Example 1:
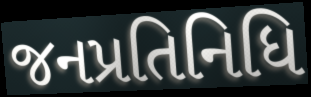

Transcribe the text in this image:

જનપ્રતિનિધિ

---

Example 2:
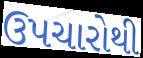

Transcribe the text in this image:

ઉપચારોથી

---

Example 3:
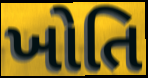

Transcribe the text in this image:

ખોતિ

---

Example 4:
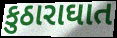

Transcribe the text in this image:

કુઠારાઘાત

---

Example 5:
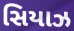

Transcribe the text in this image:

સિયાઝ